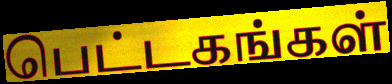
பெட்டகங்கள்